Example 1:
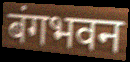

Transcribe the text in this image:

बंगभवन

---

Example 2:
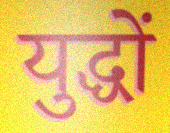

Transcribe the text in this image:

युद्धों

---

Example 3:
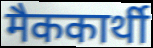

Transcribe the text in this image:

मैककार्थी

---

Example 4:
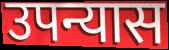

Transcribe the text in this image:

उपन्यास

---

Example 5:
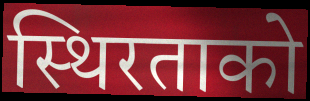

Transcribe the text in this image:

स्थिरताको